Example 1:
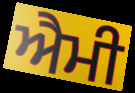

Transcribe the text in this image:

ਐਮੀ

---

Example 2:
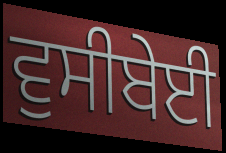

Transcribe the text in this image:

ਵੁਸੀਬੇਈ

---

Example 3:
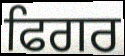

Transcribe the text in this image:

ਫਿਗਰ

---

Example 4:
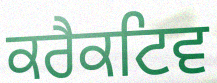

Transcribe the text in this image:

ਕਰੈਕਟਿਵ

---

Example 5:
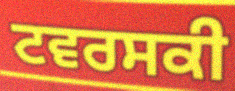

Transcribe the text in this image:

ਟਵਰਸਕੀ